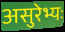
असुरेभ्यः